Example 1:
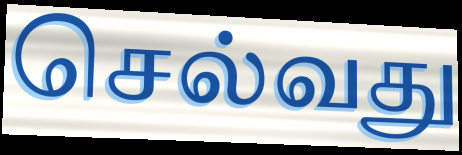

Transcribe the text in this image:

செல்வது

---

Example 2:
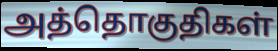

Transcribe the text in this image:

அத்தொகுதிகள்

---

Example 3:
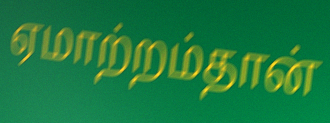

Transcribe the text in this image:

ஏமாற்றம்தான்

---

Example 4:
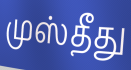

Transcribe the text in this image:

முஸ்தீது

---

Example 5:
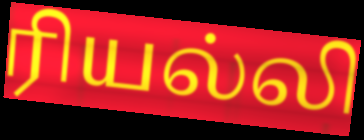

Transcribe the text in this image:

ரியல்லி